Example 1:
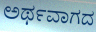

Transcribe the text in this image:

ಅರ್ಥವಾಗದ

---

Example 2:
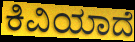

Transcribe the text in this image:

ಕಿವಿಯಾದೆ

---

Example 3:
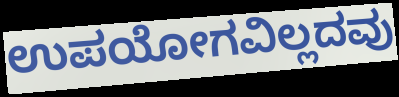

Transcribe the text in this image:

ಉಪಯೋಗವಿಲ್ಲದವು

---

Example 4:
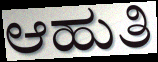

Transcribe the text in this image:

ಆಹುತಿ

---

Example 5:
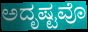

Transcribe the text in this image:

ಅದೃಷ್ಟವೊ